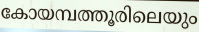
കോയമ്പത്തൂരിലെയും